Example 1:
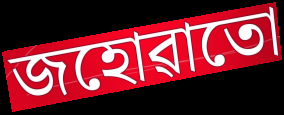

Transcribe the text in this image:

জহোৱাতো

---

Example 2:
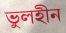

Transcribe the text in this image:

ভুলহীন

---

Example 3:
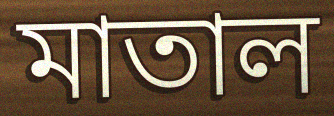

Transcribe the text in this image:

মাতাল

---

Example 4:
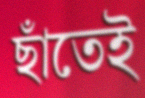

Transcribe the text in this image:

ছাঁতেই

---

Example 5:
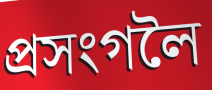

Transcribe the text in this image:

প্ৰসংগলৈ